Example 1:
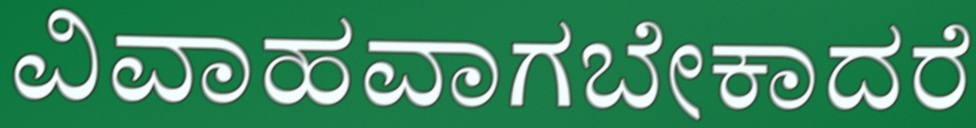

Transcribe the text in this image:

ವಿವಾಹವಾಗಬೇಕಾದರೆ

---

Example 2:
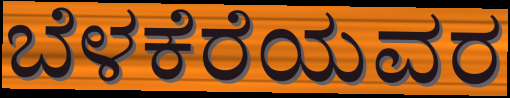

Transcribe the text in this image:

ಬೆಳಕೆರೆಯವರ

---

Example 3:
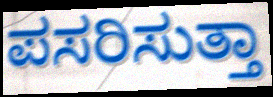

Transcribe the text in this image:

ಪಸರಿಸುತ್ತಾ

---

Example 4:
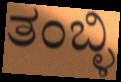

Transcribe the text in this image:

ತಂಬ್ಳಿ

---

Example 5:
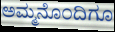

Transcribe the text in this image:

ಅಮ್ಮನೊಂದಿಗೂ